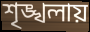
শৃঙ্খলায়